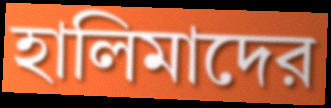
হালিমাদের